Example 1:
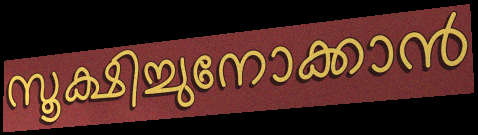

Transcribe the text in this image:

സൂക്ഷിച്ചുനോക്കാൻ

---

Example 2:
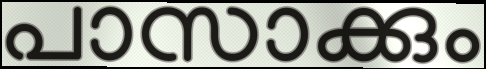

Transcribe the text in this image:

പാസാക്കും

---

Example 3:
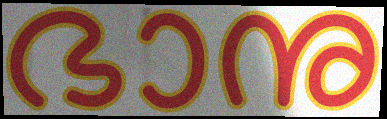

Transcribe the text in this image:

ഭാനു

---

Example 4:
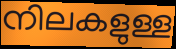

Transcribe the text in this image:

നിലകളുള്ള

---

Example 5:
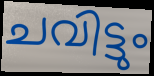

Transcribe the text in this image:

ചവിട്ടും